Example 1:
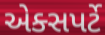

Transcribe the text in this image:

એક્સપર્ટે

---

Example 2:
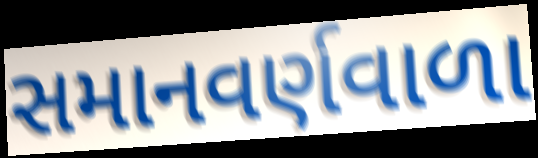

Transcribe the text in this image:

સમાનવર્ણવાળા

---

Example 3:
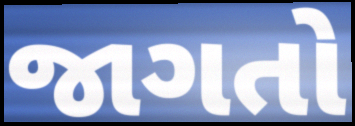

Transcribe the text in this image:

જાગતો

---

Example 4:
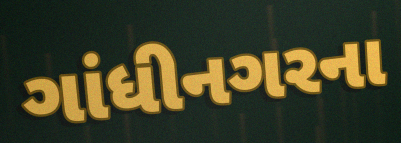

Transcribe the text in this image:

ગાંધીનગરના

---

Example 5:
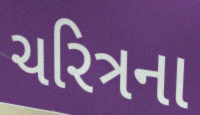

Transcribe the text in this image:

ચરિત્રના